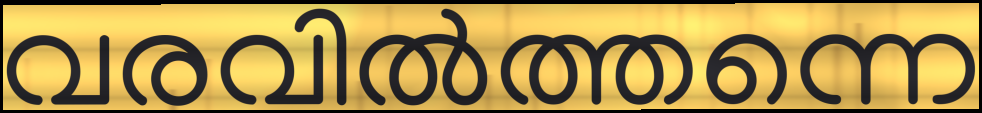
വരവിൽത്തന്നെ